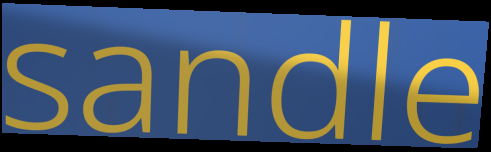
sandle